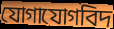
যোগাযোগবিদ